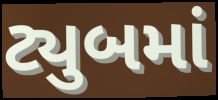
ટ્યુબમાં